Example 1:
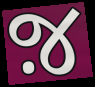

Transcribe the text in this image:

જ઼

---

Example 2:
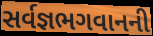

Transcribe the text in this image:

સર્વજ્ઞભગવાનની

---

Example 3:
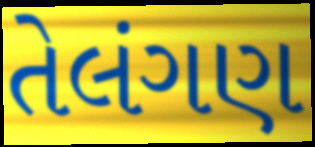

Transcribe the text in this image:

તેલંગણ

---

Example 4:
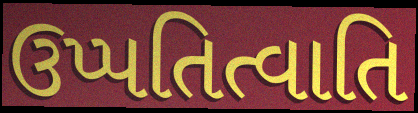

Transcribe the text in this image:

ઉપ્પતિત્વાતિ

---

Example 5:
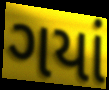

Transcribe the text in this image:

ગયાં